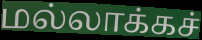
மல்லாக்கச்